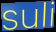
suli